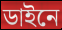
ডাইনে